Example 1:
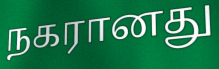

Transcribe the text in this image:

நகரானது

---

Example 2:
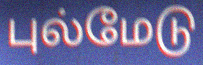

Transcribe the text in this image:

புல்மேடு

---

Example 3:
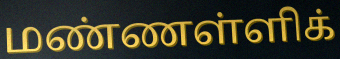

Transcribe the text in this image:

மண்ணள்ளிக்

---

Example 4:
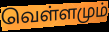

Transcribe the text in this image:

வெள்ளமும்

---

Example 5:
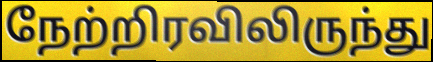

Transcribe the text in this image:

நேற்றிரவிலிருந்து